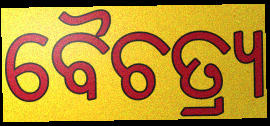
ବୈଚତ୍ର୍ୟ